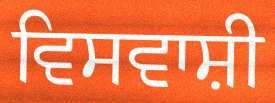
ਵਿਸਵਾਸ਼ੀ